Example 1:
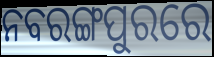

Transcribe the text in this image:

ନବରଙ୍ଗପୁରରେ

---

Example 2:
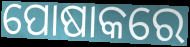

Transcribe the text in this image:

ପୋଷାକରେ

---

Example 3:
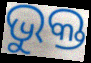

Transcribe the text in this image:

ଭୁକ୍ତ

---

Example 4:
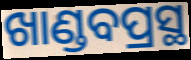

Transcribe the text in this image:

ଖାଣ୍ଡବପ୍ରସ୍ଥ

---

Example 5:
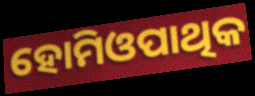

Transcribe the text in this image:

ହୋମିଓପାଥିକ